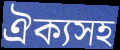
ঐক্যসহ